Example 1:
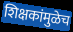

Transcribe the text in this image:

शिक्षकांमुळेच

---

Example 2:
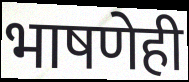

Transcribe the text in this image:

भाषणेही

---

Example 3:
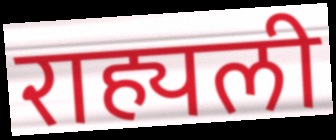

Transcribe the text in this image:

राह्यली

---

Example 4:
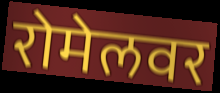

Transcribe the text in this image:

रोमेलवर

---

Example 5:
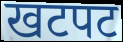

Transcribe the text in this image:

खटपट